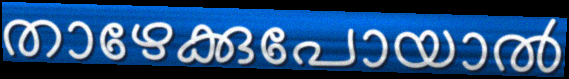
താഴേക്കുപോയാൽ